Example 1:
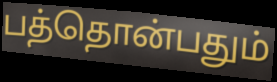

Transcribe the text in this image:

பத்தொன்பதும்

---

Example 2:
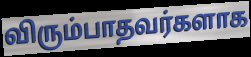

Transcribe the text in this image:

விரும்பாதவர்களாக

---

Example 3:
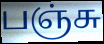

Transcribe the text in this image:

பஞ்சு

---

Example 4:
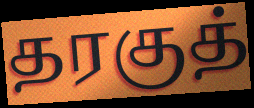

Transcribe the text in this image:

தரகுத்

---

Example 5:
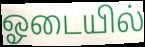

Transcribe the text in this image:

ஓடையில்